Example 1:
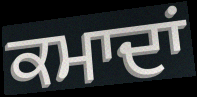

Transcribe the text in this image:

ਕਮਾਦਾਂ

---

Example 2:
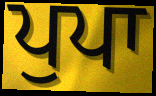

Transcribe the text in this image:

ਪੁਪਾ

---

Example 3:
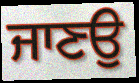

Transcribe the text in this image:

ਜਾਣਉ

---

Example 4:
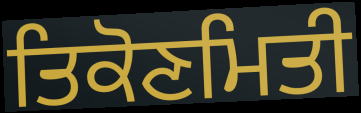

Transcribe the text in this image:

ਤਿਕੋਣਮਿਤੀ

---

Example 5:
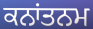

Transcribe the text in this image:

ਕਨਾਂਤਨਮ